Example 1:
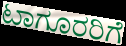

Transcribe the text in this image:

ಟಾಗೂರರಿಗೆ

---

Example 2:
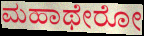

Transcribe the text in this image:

ಮಹಾಥೇರೋ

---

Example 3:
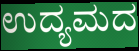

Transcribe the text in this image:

ಉದ್ಯಮದ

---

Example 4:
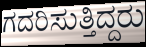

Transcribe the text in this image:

ಗದರಿಸುತ್ತಿದ್ದರು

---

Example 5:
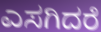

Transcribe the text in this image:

ಎಸಗಿದರೆ